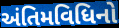
અંતિમવિધિનો